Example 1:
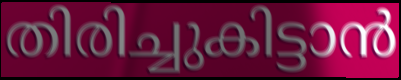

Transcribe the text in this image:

തിരിച്ചുകിട്ടാൻ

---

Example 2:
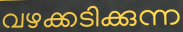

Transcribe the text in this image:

വഴക്കടിക്കുന്ന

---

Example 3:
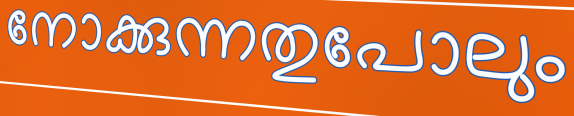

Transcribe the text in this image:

നോക്കുന്നതുപോലും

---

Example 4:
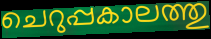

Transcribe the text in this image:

ചെറുപ്പകാലത്തു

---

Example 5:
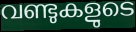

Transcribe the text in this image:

വണ്ടുകളുടെ